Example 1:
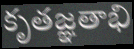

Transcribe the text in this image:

కృతజ్ఞతాభి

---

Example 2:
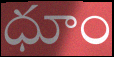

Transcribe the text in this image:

ధూం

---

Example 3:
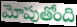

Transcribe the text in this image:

మోపుతోంది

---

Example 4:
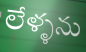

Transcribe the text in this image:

లేళ్ళను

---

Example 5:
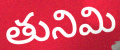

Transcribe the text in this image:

తునిమి